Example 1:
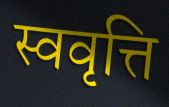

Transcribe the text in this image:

स्ववृत्ति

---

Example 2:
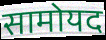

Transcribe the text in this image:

सामोयद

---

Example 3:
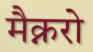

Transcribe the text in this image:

मैक्नरो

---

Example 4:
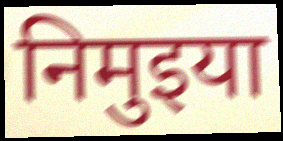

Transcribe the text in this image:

निमुइया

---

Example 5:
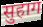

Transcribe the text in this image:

सुहाग